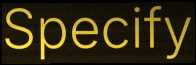
Specify